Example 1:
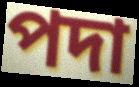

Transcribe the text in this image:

পদা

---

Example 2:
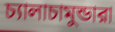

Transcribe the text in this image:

চ্যালাচামুন্ডারা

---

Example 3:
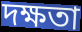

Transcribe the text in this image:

দক্ষতা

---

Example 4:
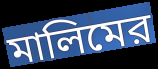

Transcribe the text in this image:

মালিমের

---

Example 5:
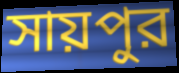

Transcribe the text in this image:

সায়পুর